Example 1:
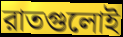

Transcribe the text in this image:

রাতগুলোই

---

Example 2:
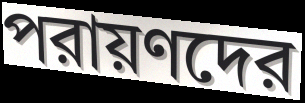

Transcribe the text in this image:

পরায়ণদের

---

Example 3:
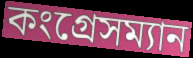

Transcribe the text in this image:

কংগ্রেসম্যান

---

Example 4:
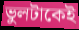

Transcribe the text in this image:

ভুলটাকেই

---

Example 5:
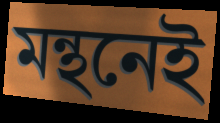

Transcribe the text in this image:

মন্থনেই